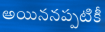
అయిననప్పటికీ